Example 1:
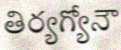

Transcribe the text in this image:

తిర్యగ్యోనౌ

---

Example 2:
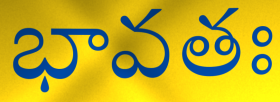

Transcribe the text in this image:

భావతః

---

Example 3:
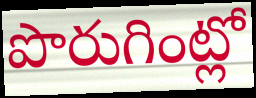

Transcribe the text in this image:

పొరుగింట్లో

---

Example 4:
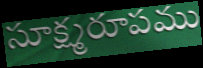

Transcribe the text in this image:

సూక్ష్మరూపము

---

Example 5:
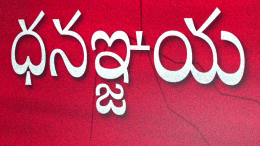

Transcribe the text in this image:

ధనఞ్జయ